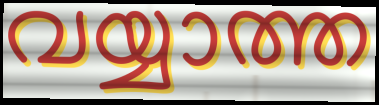
വയ്യാത്ത